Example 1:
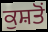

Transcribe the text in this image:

ਕੁਸ਼ਤੋਂ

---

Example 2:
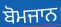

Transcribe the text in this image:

ਬੋਮਜਾਨ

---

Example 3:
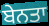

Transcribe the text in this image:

ਬੇਨਤਾ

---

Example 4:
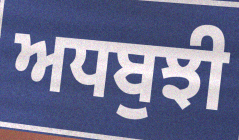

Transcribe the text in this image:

ਅਧਬੁਝੀ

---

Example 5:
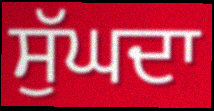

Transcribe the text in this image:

ਸੁੱਘਦਾ